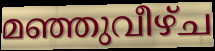
മഞ്ഞുവീഴ്ച